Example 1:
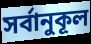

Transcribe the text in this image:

সর্বানুকূল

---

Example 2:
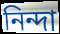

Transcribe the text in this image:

নিন্দা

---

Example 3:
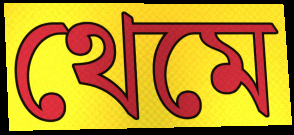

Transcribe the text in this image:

থেমে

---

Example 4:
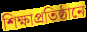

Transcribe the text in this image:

শিক্ষাপ্রতিষ্ঠানে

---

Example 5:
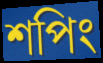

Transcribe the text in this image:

শপিং